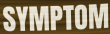
SYMPTOM